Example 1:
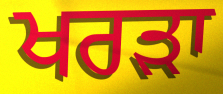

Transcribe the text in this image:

ਖਰੜਾ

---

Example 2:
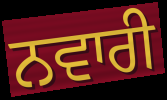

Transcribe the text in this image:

ਨਵਾਰੀ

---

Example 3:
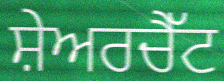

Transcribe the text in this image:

ਸ਼ੇਅਰਚੈੱਟ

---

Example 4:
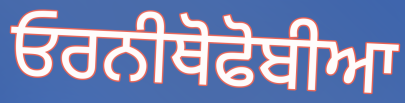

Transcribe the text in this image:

ਓਰਨੀਥੋਫੋਬੀਆ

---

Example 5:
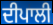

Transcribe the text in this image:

ਦੀਪਾਲੀ